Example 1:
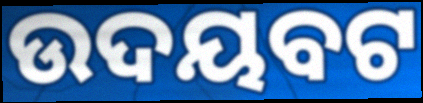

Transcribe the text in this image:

ଉଦୟବଟ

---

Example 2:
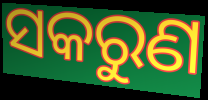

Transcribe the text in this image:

ସକରୁଣ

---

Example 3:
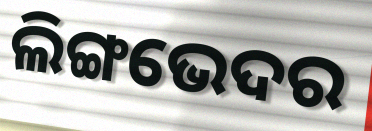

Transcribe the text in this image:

ଲିଙ୍ଗଭେଦର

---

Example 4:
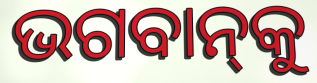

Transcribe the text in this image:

ଭଗବାନ୍‌କୁ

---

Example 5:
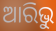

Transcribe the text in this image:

ଆରିଭୁ